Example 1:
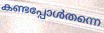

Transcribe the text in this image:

കണ്ടപ്പോൾതന്നെ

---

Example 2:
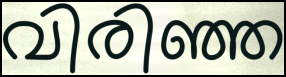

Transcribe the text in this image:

വിരിഞ്ഞ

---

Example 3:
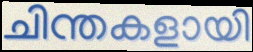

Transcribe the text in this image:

ചിന്തകളായി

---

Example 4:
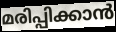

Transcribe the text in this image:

മരിപ്പിക്കാൻ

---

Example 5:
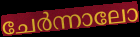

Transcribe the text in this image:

ചേർന്നാലോ